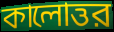
কালোত্তর